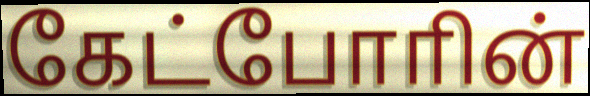
கேட்போரின்